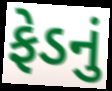
ફેડનું